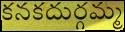
కనకదుర్గమ్మ